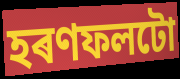
হৰণফলটো